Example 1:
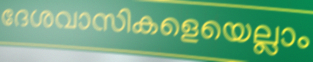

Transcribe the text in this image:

ദേശവാസികളെയെല്ലാം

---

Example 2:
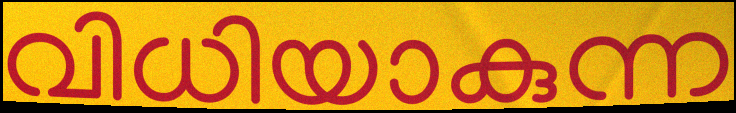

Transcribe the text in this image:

വിധിയാകുന്ന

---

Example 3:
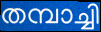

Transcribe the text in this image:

തമ്പാച്ചി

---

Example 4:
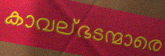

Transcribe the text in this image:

കാവല്ഭടന്മാരെ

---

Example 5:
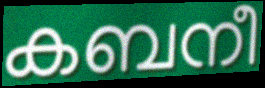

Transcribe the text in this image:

കബനീ